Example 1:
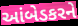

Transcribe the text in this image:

આંબેડકરને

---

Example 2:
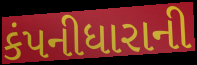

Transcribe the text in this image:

કંપનીધારાની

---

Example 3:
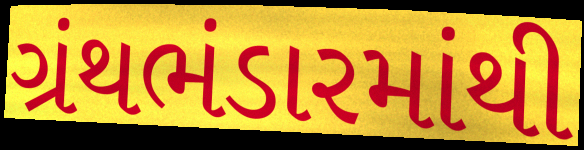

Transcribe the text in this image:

ગ્રંથભંડારમાંથી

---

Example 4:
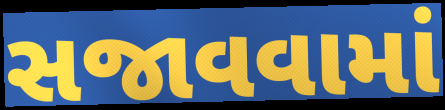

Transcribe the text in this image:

સજાવવામાં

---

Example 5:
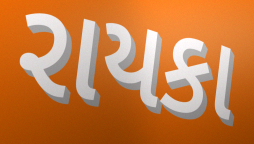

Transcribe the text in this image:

રાયકા